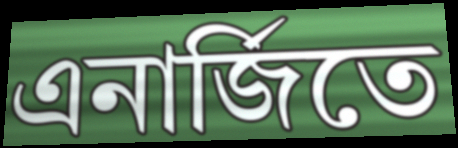
এনার্জিতে